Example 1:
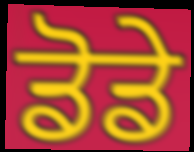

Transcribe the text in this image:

ਡੋਡੇ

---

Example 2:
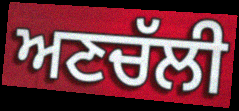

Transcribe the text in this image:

ਅਣਚੱਲੀ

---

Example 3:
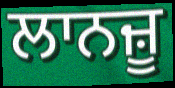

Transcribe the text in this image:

ਲਾਨਜ਼ੂ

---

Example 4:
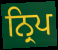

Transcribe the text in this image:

ਨ੍ਰਿਪ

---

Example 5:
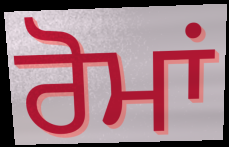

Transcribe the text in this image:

ਰੋਮਾਂ